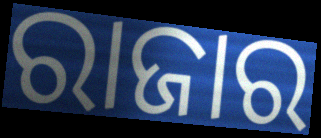
ରାଜାର